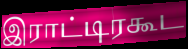
இராட்டிரகூட